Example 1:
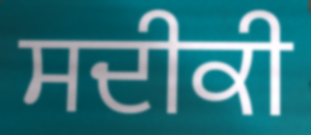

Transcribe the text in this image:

ਸਦੀਕੀ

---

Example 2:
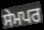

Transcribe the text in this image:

ਸੇਮਪਰ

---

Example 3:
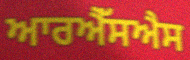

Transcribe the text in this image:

ਆਰਐੱਸਐਸ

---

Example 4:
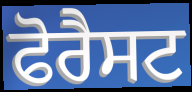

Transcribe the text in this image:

ਫੋਰੈਸਟ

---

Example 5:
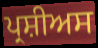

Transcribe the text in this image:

ਪ੍ਰਸ਼ੀਅਸ